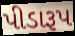
પીડારૂપ